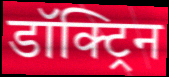
डॉक्ट्रिन